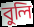
বুলি